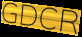
GDCR